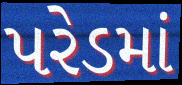
પરેડમાં